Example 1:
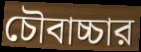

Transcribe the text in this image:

চৌবাচ্চার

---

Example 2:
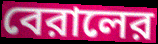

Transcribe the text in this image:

বেরালের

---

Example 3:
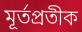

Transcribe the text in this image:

মূর্তপ্রতীক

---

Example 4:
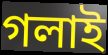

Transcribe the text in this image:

গলাই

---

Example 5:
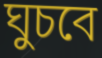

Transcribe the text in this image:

ঘুচবে